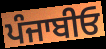
ਪੰਜਾਬੀਓ